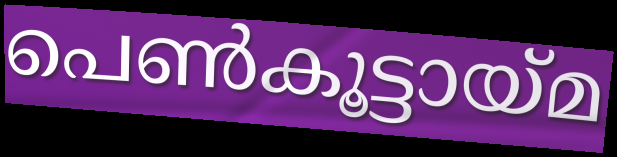
പെൺകൂട്ടായ്മ